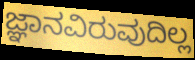
ಜ್ಞಾನವಿರುವುದಿಲ್ಲ